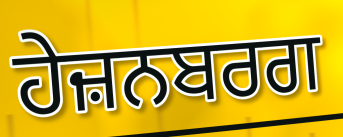
ਹੇਜ਼ਨਬਰਗ